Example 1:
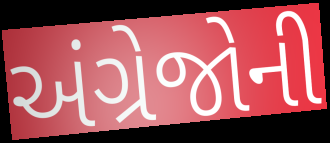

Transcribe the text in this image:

અંગ્રેજોની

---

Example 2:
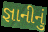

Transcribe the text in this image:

જ્ઞાનીનું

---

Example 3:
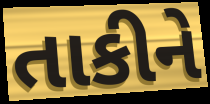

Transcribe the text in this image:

તાકીને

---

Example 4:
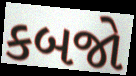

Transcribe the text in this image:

કબજો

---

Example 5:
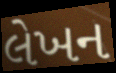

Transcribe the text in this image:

લેખન